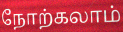
நோற்கலாம்